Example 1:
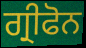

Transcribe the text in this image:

ਗ੍ਰੀਫੋਨ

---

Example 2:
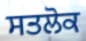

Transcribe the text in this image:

ਸਤਲੋਕ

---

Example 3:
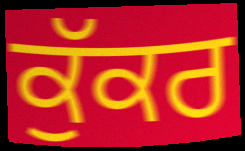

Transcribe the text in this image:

ਕੁੱਕਰ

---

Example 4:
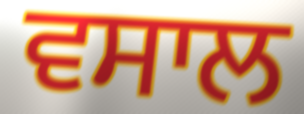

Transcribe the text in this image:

ਵਸਾਲ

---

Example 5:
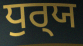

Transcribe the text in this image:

ਧੁਰ੍‍ਯ